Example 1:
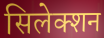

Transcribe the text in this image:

सिलेक्शन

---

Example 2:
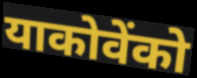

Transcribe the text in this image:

याकोवेंको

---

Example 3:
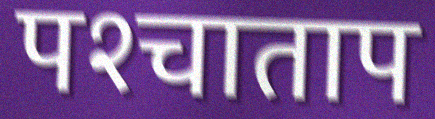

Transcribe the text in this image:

पश्चाताप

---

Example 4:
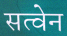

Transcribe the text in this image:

सत्वेन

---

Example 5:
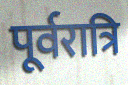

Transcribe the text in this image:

पूर्वरात्रि